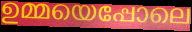
ഉമ്മയെപ്പോലെ